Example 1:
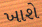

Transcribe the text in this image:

ખાશે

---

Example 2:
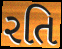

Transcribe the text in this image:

રતિ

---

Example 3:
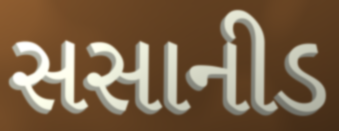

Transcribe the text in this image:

સસાનીડ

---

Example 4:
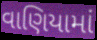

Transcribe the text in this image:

વાણિયામાં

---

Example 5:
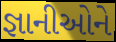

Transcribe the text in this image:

જ્ઞાનીઓને